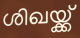
ശിഖയ്ക്ക്